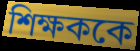
শিক্ষককে